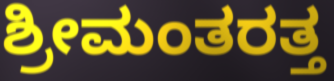
ಶ್ರೀಮಂತರತ್ತ